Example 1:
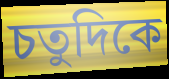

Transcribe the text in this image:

চতুদিকে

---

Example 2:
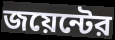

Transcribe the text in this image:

জয়েন্টের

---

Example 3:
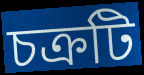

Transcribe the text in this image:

চক্রটি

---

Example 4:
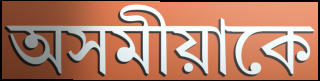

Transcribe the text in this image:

অসমীয়াকে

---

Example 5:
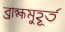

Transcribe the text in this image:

ব্রাহ্মমুহূর্ত